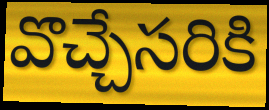
వొచ్చేసరికి